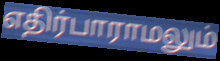
எதிர்பாராமலும்